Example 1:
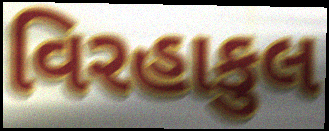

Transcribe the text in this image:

વિરહાકુલ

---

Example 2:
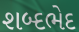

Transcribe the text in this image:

શબ્દભેદ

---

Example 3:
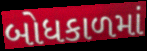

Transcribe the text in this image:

બોધકાળમાં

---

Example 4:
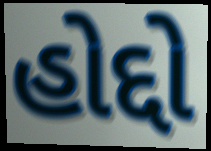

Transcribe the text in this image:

હોદ્દો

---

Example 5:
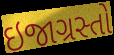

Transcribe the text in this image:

ઇજાગ્રસ્તો